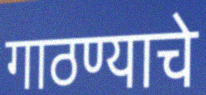
गाठण्याचे